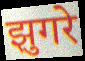
झुगरे